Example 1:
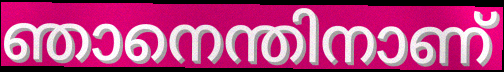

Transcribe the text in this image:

ഞാനെന്തിനാണ്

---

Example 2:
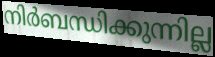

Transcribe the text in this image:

നിർബന്ധിക്കുന്നില്ല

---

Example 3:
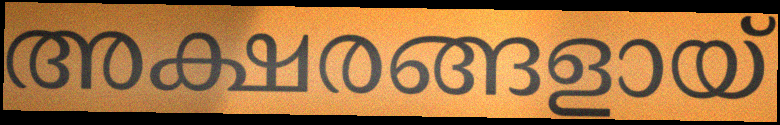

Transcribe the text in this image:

അക്ഷരങ്ങളായ്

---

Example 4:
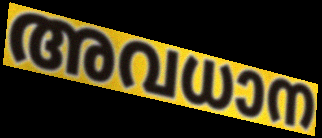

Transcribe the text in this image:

അവധാന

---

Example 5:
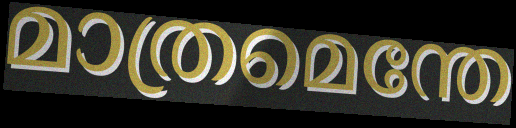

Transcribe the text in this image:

മാത്രമെന്തേ